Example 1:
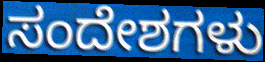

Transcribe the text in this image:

ಸಂದೇಶಗಳು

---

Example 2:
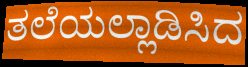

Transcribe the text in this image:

ತಲೆಯಲ್ಲಾಡಿಸಿದ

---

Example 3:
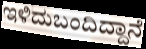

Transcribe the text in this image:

ಇಳಿದುಬಂದಿದ್ದಾನೆ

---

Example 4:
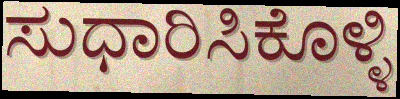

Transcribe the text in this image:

ಸುಧಾರಿಸಿಕೊಳ್ಳಿ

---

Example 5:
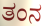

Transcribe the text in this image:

ತಂನ